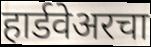
हार्डवेअरचा